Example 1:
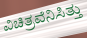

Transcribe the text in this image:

ವಿಚಿತ್ರವೆನಿಸಿತ್ತು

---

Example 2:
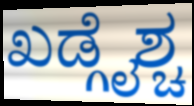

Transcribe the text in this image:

ಖಡ್ಗೈಶ್ಚ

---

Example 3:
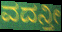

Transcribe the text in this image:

ವದನ್ತೀ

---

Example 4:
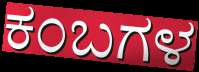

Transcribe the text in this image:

ಕಂಬಗಳ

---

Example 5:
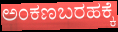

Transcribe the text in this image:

ಅಂಕಣಬರಹಕ್ಕೆ